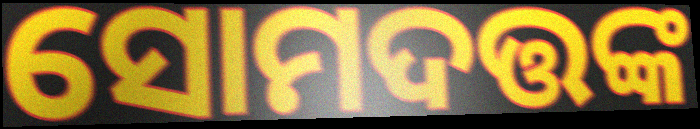
ସୋମଦତ୍ତଙ୍କ